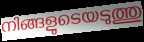
നിങ്ങളുടെയടുത്തു